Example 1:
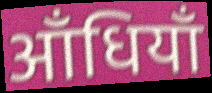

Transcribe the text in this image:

आँधियाँ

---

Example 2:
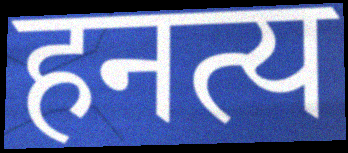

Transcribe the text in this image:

हनत्य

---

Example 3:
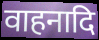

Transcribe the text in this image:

वाहनादि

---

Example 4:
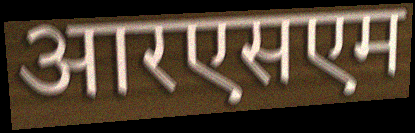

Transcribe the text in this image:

आरएसएम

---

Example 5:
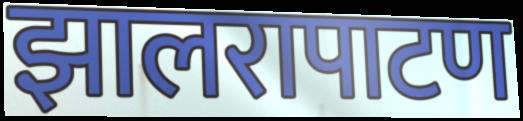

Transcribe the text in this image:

झालरापाटण